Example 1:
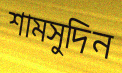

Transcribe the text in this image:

শামসুদিন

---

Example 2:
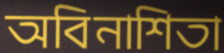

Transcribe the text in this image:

অবিনাশিতা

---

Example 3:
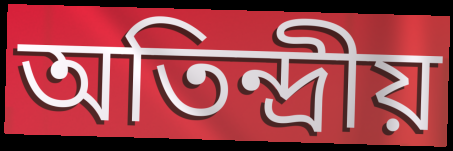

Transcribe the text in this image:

অতিন্দ্রীয়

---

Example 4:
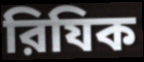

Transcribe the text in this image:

রিযিক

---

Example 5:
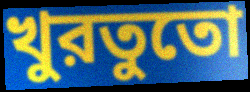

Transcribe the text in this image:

খুরতুতো